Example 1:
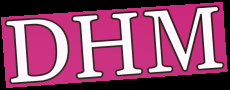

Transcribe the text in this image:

DHM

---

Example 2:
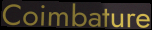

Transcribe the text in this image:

Coimbature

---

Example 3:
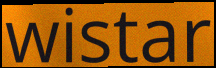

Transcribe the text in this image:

wistar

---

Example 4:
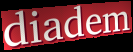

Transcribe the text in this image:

diadem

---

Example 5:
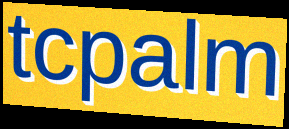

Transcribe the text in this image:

tcpalm